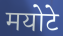
मयोटे